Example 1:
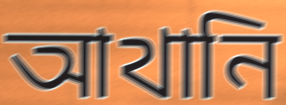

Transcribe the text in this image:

আথানি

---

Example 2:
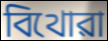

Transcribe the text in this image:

বিথোৱা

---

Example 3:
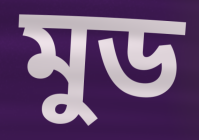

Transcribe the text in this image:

মুড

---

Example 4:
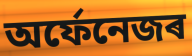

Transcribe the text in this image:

অৰ্ফেনেজৰ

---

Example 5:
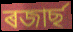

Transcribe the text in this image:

ৰজাৰ্ছ